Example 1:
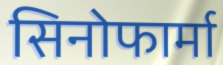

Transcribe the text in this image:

सिनोफार्मा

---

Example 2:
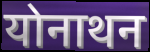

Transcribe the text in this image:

योनाथन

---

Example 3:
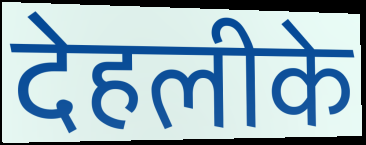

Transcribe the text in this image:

देहलीके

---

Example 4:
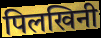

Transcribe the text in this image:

पिलखिनी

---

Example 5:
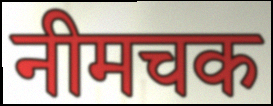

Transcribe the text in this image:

नीमचक